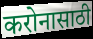
करोनासाठी